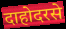
दाहोदरसे